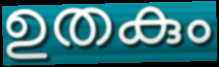
ഉതകും